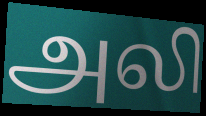
அலி